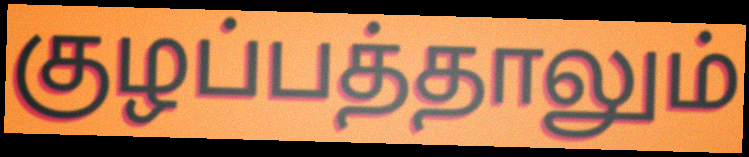
குழப்பத்தாலும்